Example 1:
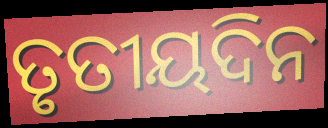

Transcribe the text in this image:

ତୃତୀୟଦିନ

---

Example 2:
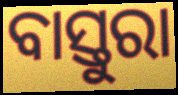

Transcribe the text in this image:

ବାସ୍ତୁରା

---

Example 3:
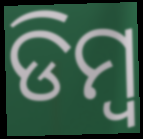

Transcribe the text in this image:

ଡିମ୍ବ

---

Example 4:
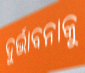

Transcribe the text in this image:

ଦୁର୍ଭାବନାକୁ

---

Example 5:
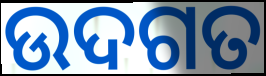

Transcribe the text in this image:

ଉଦଗତ